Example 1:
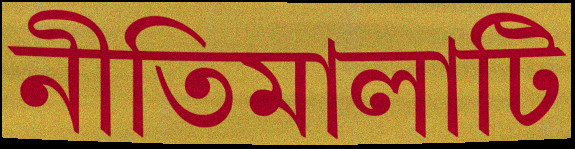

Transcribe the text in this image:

নীতিমালাটি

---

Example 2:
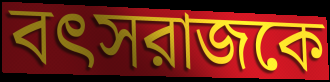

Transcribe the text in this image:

বৎসরাজকে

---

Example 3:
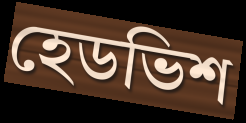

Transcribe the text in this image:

হেডভিশ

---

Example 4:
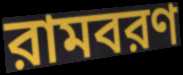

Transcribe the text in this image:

রামবরণ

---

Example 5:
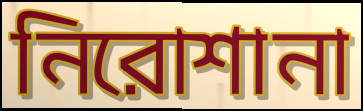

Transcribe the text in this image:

নিরোশানা